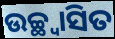
ଉଚ୍ଛ୍ୱାସିତ